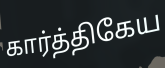
கார்த்திகேய